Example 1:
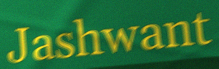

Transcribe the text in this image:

Jashwant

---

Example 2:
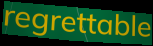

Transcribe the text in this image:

regrettable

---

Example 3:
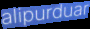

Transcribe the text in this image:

alipurduar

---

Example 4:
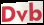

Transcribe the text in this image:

Dvb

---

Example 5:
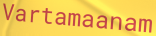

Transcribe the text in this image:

Vartamaanam